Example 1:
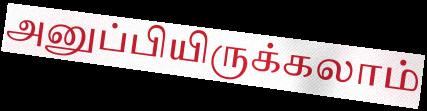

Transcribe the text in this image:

அனுப்பியிருக்கலாம்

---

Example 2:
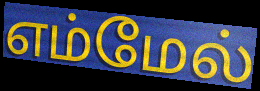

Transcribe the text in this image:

எம்மேல்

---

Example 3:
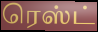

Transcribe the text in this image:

ரெஸ்ட்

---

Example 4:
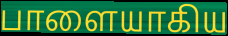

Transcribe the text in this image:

பாளையாகிய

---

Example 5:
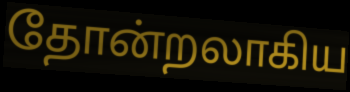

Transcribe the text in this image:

தோன்றலாகிய